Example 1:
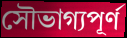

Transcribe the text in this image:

সৌভাগ্যপূর্ণ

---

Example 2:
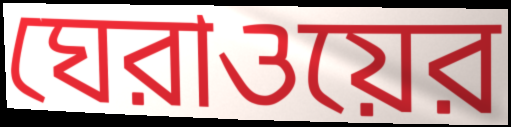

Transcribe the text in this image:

ঘেরাওয়ের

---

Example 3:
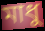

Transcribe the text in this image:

মাধু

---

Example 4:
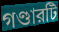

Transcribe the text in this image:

গণ্ডারটি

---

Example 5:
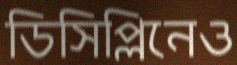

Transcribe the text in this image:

ডিসিপ্লিনেও